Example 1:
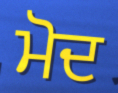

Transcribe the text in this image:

ਮੋਦ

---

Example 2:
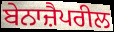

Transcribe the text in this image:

ਬੇਨਾਜ਼ੈਪਰੀਲ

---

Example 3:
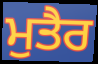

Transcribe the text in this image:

ਮੁਤੈਰ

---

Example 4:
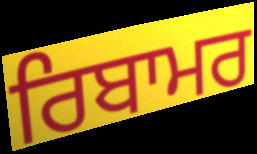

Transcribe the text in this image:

ਰਿਬਾਮਰ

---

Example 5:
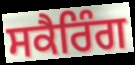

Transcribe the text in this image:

ਸਕੈਰਿੰਗ